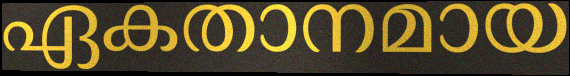
ഏകതാനമായ